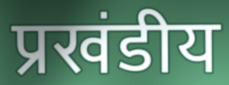
प्रखंडीय